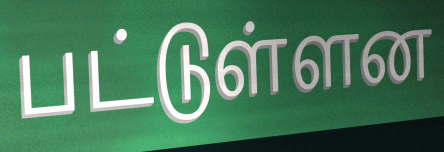
பட்டுள்ளன